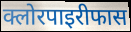
क्लोरपाइरीफास